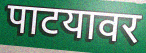
पाटयावर